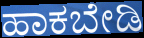
ಹಾಕಬೇಡಿ